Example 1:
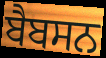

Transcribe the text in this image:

ਬੈਬਸਨ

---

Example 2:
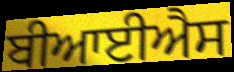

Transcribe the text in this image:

ਬੀਆਈਐਸ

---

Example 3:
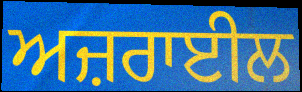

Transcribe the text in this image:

ਅਜ਼ਰਾਈਲ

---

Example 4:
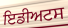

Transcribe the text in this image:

ਇਡੀਅਟਸ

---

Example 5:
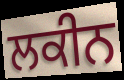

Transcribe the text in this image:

ਲਕੀਨ